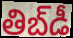
తిబ్‌డీ